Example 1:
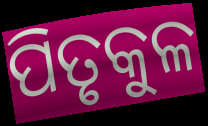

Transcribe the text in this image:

ପିତୃକୁଳ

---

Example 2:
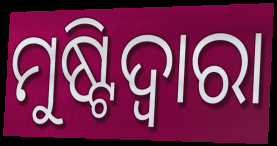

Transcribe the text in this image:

ମୁଷ୍ଟିଦ୍ୱାରା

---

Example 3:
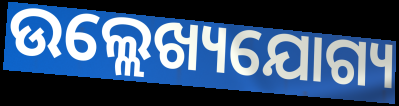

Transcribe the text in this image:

ଉଲ୍ଲେଖ୍ୟଯୋଗ୍ୟ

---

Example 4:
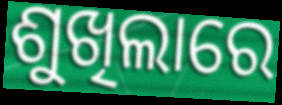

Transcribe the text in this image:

ଶୁଖିଲାରେ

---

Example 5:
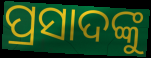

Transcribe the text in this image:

ପ୍ରସାଦଙ୍କୁ